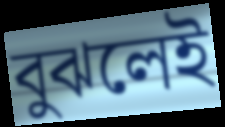
বুঝলেই